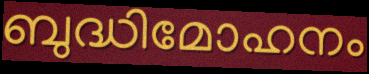
ബുദ്ധിമോഹനം